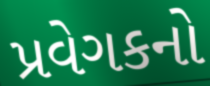
પ્રવેગકનો